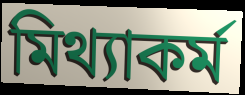
মিথ্যাকর্ম